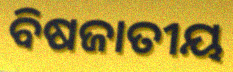
ବିଷଜାତୀୟ